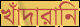
খাঁদারানি